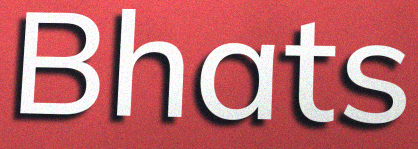
Bhats